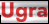
Ugra